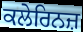
ਕਲੇਰਿਨਜ਼